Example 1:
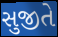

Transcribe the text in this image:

સુજીતે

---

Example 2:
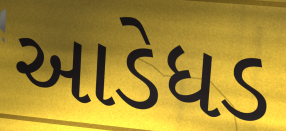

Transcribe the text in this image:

આડેધડ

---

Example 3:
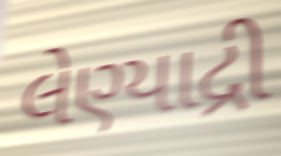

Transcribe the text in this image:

લેણ્યાદ્રી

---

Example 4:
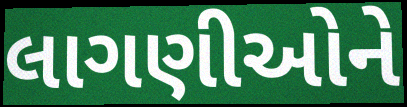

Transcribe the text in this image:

લાગણીઓને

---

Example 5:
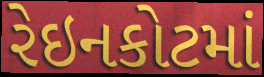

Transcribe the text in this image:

રેઇનકોટમાં